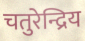
चतुरेन्द्रिय